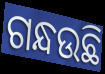
ଗନ୍ଧଉଛି